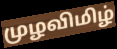
முழவிமிழ்